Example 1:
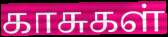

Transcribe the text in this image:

காசுகள்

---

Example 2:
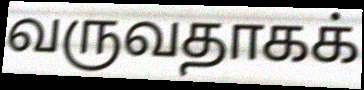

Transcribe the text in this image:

வருவதாகக்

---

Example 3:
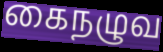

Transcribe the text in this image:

கைநழுவ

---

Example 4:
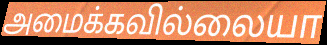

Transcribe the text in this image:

அமைக்கவில்லையா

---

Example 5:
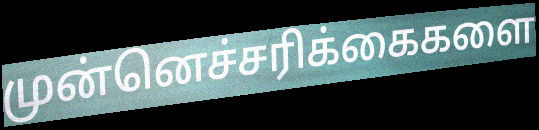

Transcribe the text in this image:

முன்னெச்சரிக்கைகளை